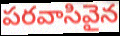
పరవాసివైన